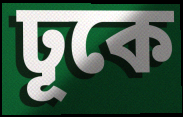
ঢূকে